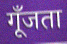
गूँजता